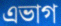
এভাগ